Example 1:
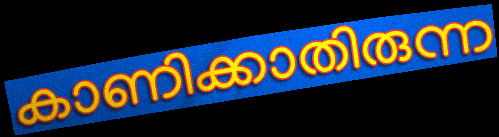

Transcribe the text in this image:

കാണിക്കാതിരുന്ന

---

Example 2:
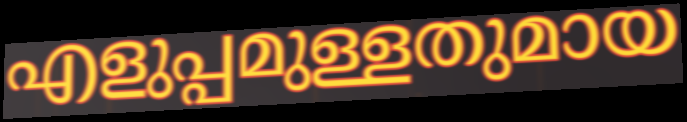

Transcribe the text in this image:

എളുപ്പമുള്ളതുമായ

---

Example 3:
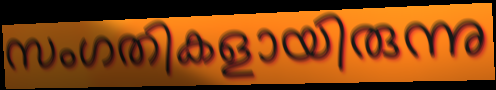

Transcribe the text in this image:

സംഗതികളായിരുന്നു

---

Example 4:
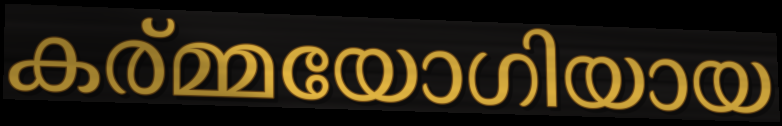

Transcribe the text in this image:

കര്മ്മയോഗിയായ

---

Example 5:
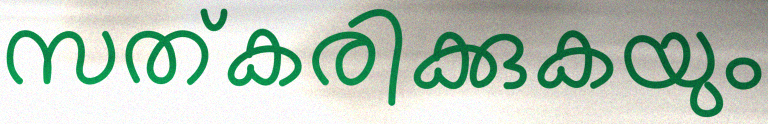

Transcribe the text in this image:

സത്കരിക്കുകയും